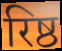
रिष्ठ